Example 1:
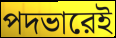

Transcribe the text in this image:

পদভারেই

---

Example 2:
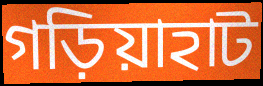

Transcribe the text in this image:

গড়িয়াহাট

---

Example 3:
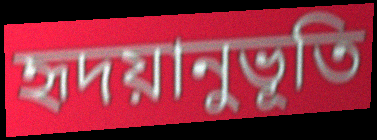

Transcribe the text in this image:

হৃদয়ানুভূতি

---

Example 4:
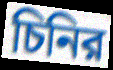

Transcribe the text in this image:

চিনির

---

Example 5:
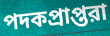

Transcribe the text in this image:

পদকপ্রাপ্তরা